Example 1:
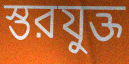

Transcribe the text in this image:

স্তরযুক্ত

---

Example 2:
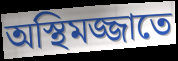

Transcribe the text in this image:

অস্থিমজ্জাতে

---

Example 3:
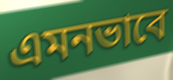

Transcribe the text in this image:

এমনভাবে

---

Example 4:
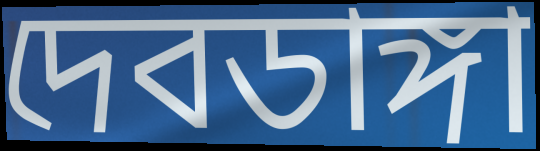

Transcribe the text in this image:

দেবডাঙ্গা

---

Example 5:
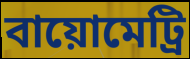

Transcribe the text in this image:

বায়োমেট্রি